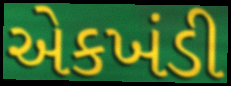
એકખંડી